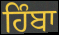
ਹਿੰਬਾ